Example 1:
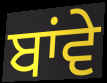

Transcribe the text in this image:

ਬਾਂਵੇ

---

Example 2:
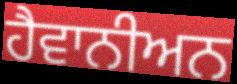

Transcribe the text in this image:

ਹੈਵਾਨੀਅਨ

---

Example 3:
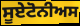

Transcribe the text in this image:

ਸੂਏਟੋਨੀਅਸ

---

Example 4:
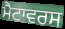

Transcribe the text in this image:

ਮੈਟਾਵਰਸ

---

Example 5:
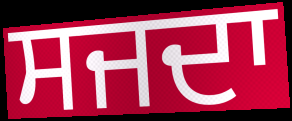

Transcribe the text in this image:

ਸਜਦਾ